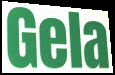
Gela